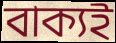
বাক্যই